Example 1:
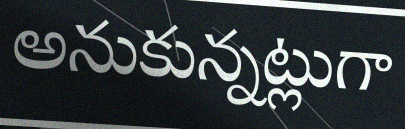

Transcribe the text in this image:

అనుకున్నట్లుగా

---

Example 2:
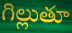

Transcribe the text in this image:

గిల్లుతూ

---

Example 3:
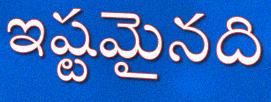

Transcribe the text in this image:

ఇష్టమైనది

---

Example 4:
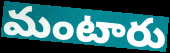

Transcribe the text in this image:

మంటారు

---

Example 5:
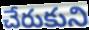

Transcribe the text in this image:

చేరుకుని